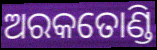
ଅରକତୋଣ୍ଡି